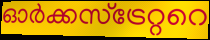
ഓർക്കസ്ട്രേറ്ററെ